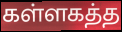
கள்ளகத்த